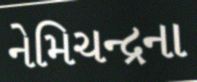
નેમિચન્દ્રના